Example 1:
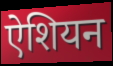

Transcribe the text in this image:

ऐशियन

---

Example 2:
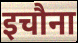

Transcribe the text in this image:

इचौना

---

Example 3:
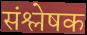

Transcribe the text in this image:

संश्लेषक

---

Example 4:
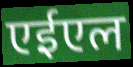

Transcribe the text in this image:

एईएल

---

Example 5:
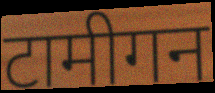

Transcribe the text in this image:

टामीगन